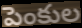
పెంకుల